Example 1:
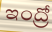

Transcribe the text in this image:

ఇంద్రో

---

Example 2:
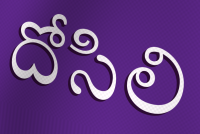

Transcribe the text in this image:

దోసిలి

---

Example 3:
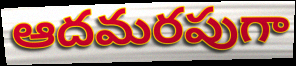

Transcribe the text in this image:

ఆదమరపుగా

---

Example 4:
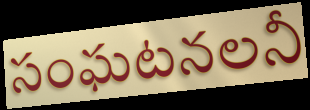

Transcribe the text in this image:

సంఘటనలనీ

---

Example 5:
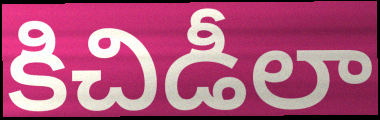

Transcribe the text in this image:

కిచిడీలా